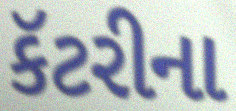
કૅટરીના